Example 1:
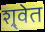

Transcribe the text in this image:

श्र्वेत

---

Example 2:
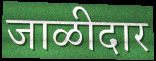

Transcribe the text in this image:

जाळीदार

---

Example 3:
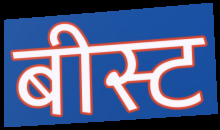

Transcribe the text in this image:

बीस्ट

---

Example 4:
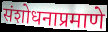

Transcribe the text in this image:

संशोधनाप्रमाणे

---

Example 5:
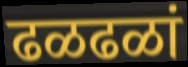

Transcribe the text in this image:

ढळढळां